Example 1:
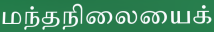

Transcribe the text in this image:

மந்தநிலையைக்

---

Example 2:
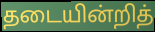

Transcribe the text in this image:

தடையின்றித்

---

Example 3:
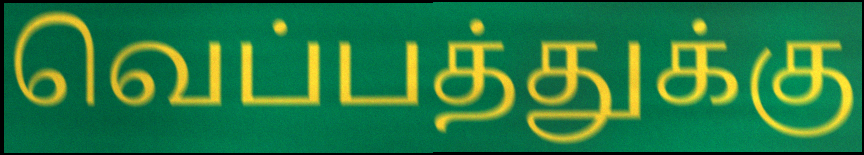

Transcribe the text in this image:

வெப்பத்துக்கு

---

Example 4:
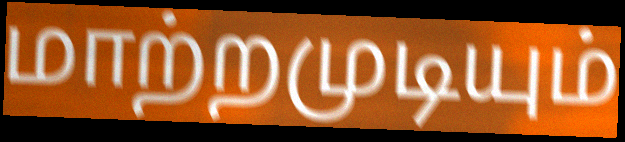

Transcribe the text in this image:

மாற்றமுடியும்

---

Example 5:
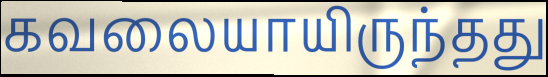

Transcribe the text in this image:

கவலையாயிருந்தது